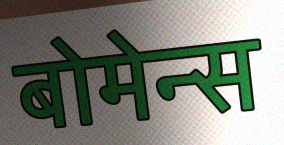
बोमेन्स